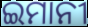
ଇମାନୀ